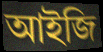
আইজি